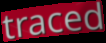
traced